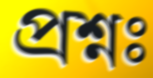
প্রশ্নঃ